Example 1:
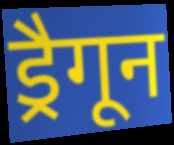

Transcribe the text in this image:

ड्रैगून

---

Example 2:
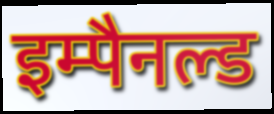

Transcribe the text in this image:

इम्पैनल्ड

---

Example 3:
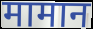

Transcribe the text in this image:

मामान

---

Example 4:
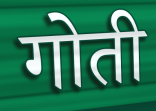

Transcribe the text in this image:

गोती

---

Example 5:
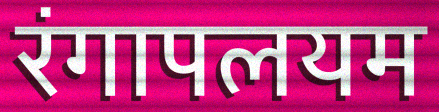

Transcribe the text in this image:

रंगापलयम